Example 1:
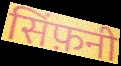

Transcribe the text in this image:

सिंफ़नी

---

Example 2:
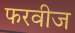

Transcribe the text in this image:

फरवीज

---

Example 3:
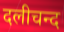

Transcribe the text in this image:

दलीचन्द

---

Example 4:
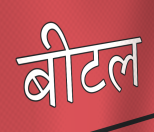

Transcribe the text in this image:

बीटल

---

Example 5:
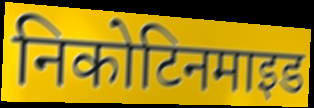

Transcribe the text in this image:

निकोटिनमाइड